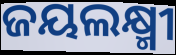
ଜୟଲକ୍ଷ୍ମୀ